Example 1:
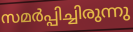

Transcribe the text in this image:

സമർപ്പിച്ചിരുന്നു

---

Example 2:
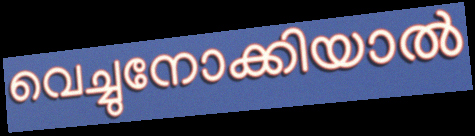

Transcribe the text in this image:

വെച്ചുനോക്കിയാൽ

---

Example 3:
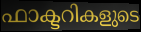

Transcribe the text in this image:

ഫാക്ടറികളുടെ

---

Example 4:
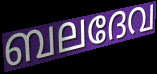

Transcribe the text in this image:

ബലദേവ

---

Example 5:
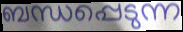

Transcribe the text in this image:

ബന്ധപ്പെടുന്ന